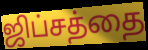
ஜிப்சத்தை